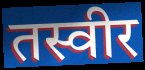
तस्वीर